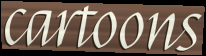
cartoons